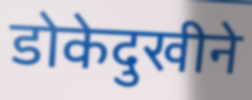
डोकेदुखीने